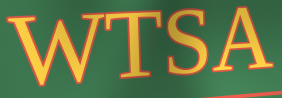
WTSA